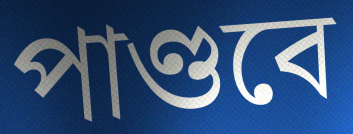
পাণ্ডবে